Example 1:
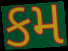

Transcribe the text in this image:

કમ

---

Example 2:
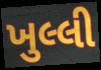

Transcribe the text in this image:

ખુલ્લી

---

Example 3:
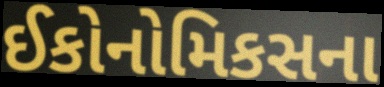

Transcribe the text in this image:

ઈકોનોમિકસના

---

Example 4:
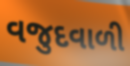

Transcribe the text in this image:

વજુદવાળી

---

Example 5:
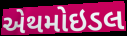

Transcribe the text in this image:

એથમોઇડલ